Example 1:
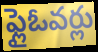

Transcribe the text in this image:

ఫ్లైఓవర్లు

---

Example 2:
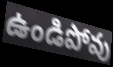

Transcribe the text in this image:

ఉండిపోవు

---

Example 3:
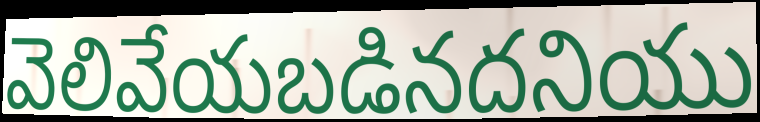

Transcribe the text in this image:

వెలివేయబడినదనియు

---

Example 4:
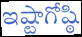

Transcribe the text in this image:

ఇష్టాగోష్ఠి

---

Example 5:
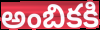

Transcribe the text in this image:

అంబికకి